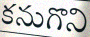
కనుగొని